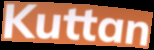
Kuttan